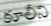
కూలీని